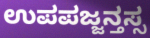
ಉಪಪಜ್ಜನ್ತಸ್ಸ